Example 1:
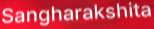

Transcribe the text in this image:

Sangharakshita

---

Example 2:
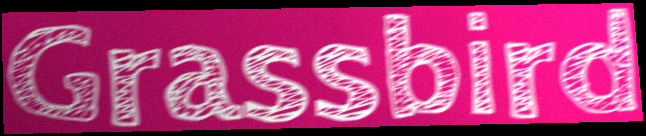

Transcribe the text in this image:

Grassbird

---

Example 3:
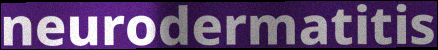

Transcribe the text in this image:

neurodermatitis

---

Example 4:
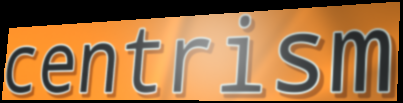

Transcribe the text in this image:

centrism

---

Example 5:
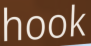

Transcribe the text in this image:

hook